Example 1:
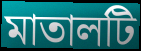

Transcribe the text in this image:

মাতালটি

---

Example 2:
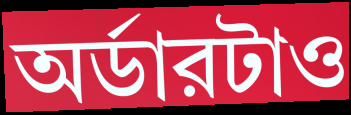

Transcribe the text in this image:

অর্ডারটাও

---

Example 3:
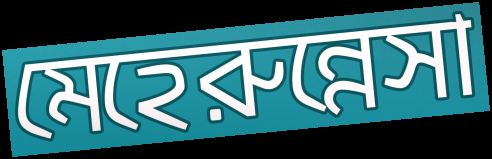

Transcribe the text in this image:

মেহেরুন্নেসা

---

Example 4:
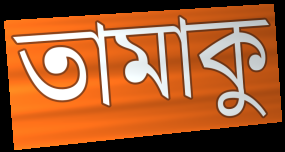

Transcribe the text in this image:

তামাকু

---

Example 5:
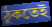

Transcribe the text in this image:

ঠুকতেই